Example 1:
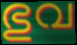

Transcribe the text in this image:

ഭുവ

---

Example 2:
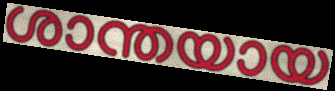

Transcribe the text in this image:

ശാന്തയായ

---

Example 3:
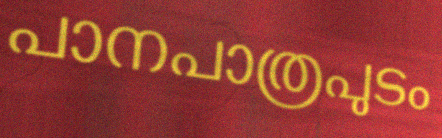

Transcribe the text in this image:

പാനപാത്രപുടം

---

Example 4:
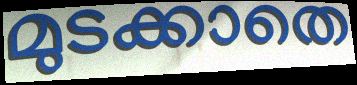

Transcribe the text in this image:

മുടക്കാതെ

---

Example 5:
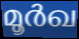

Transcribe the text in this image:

മൂർഖ